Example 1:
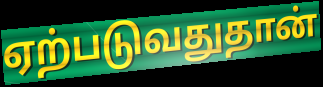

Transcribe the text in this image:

ஏற்படுவதுதான்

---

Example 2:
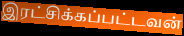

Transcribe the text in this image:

இரட்சிக்கப்பட்டவன்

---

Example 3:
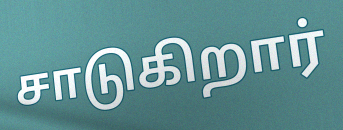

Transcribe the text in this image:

சாடுகிறார்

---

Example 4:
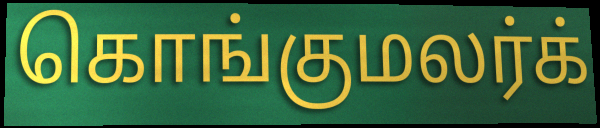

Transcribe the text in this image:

கொங்குமலர்க்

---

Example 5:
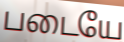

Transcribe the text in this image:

படையே